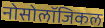
नोसोलॉजिकल